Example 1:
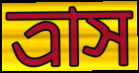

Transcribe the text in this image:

ত্রাস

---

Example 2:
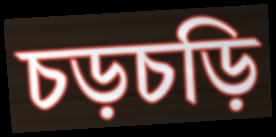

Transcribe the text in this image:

চড়চড়ি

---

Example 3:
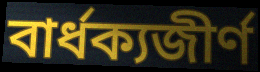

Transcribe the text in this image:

বার্ধক্যজীর্ণ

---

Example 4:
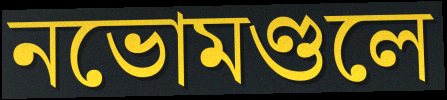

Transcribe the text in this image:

নভোমণ্ডলে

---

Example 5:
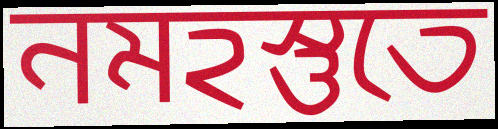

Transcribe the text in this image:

নমহস্তুতে